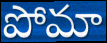
పోమా